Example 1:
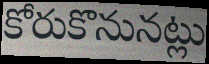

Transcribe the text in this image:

కోరుకొనునట్లు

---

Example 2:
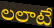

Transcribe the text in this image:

లలాటే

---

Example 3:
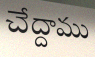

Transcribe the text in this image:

చేద్దాము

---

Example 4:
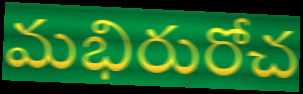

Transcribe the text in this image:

మభిరురోచ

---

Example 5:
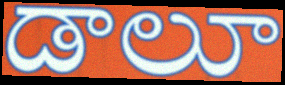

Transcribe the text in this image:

డాలూ